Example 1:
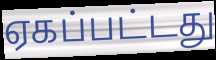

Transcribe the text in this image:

ஏகப்பட்டது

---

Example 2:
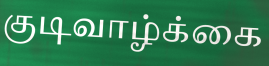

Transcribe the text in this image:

குடிவாழ்க்கை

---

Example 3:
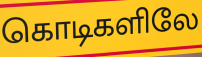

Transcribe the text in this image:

கொடிகளிலே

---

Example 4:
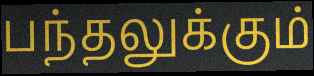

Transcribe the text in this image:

பந்தலுக்கும்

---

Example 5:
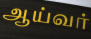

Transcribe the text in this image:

ஆய்வர்